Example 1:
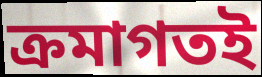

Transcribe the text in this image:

ক্রমাগতই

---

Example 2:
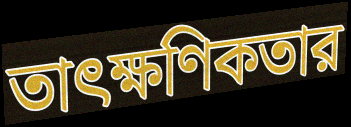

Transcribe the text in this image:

তাৎক্ষণিকতার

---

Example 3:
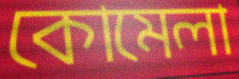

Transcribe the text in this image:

কোমেলা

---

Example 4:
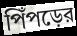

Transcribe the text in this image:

পিঁপড়ের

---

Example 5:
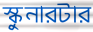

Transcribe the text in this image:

স্কুনারটার